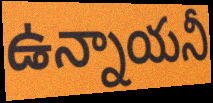
ఉన్నాయనీ